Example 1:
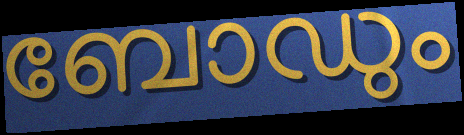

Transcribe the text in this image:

ബോഡും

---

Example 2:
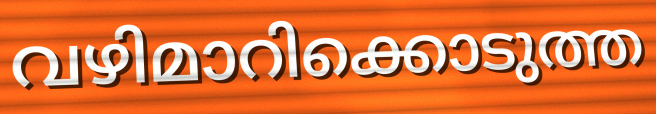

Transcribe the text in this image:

വഴിമാറിക്കൊടുത്ത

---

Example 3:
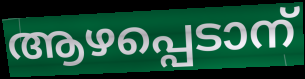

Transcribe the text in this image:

ആഴപ്പെടാന്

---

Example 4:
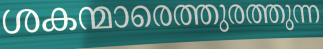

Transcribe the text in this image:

ശകന്മാരെത്തുരത്തുന്ന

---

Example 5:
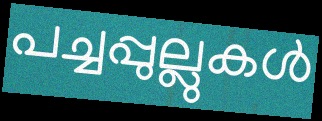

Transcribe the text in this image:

പച്ചപ്പുല്ലുകൾ